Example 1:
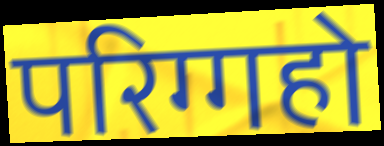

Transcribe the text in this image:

परिग्गहो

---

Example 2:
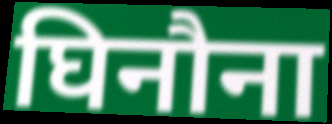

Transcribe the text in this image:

घिनौना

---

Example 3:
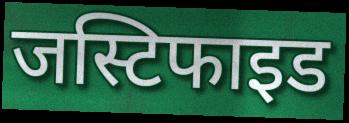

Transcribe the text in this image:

जस्टिफाइड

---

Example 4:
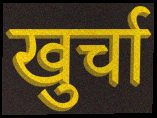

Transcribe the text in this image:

खुर्चा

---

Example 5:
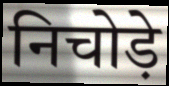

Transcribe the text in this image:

निचोड़े